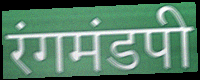
रंगमंडपी